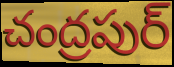
చంద్రపుర్